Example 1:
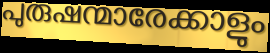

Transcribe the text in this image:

പുരുഷന്മാരേക്കാളും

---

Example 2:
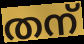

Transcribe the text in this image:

തന്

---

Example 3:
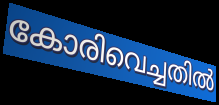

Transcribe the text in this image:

കോരിവെച്ചതിൽ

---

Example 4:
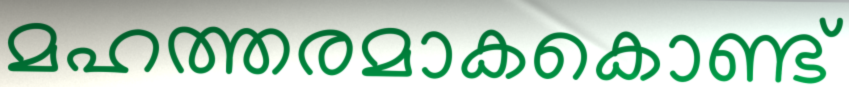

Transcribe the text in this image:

മഹത്തരമാകകൊണ്ട്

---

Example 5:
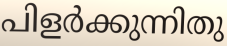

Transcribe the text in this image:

പിളർക്കുന്നിതു